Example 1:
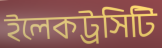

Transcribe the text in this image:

ইলেকট্রসিটি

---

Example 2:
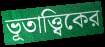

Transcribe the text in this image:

ভূতাত্ত্বিকের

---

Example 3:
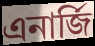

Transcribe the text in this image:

এনার্জি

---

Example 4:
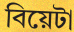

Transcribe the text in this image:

বিয়েটা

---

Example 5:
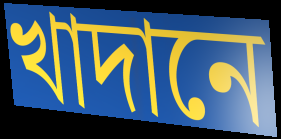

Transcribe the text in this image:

খাদানে